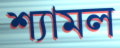
শ্যামল